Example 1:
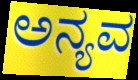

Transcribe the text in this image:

ಅನ್ಯವ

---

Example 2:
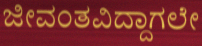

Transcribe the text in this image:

ಜೀವಂತವಿದ್ದಾಗಲೇ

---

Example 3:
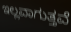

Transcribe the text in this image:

ಇಲ್ಲವಾಗುತ್ತವೆ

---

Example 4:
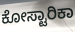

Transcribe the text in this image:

ಕೋಸ್ಟಾರಿಕಾ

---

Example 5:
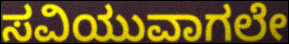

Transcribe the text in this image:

ಸವಿಯುವಾಗಲೇ